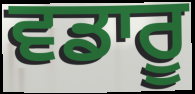
ਵਡਾਰੂ